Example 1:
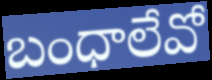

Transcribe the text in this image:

బంధాలేవో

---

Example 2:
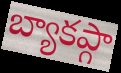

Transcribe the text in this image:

బ్యాకప్గా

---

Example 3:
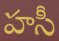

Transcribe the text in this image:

హసీ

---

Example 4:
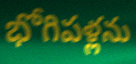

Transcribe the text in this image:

భోగిపళ్లను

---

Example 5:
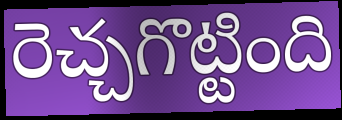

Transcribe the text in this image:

రెచ్చగొట్టింది